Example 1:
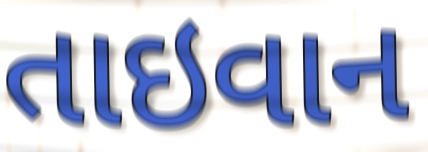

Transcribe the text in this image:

તાઇવાન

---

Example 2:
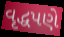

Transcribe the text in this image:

વૃદ્ધપણે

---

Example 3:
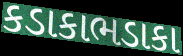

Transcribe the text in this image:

કડાકાભડાકા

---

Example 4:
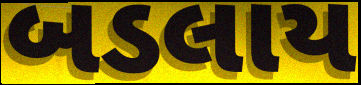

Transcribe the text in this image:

બડલાય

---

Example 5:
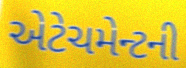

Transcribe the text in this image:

એટેચમેન્ટની